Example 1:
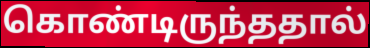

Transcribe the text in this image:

கொண்டிருந்ததால்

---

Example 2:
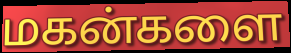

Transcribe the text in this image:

மகன்களை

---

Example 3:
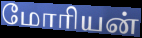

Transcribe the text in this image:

மோரியன்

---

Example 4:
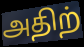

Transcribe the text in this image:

அதிற்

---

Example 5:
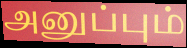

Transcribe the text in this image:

அனுப்பும்